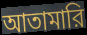
আতামারি